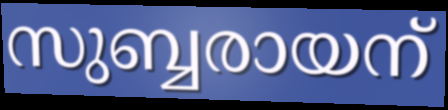
സുബ്ബരായന്